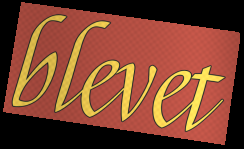
blevet